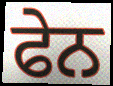
ਫੇਨ